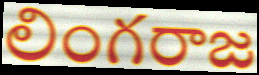
లింగరాజ